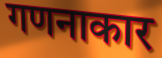
गणनाकार